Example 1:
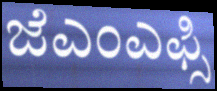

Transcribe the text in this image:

ಜೆಎಂಎಫ್ಸಿ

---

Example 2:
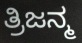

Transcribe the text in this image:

ತ್ರಿಜನ್ಮ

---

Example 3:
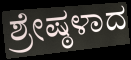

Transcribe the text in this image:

ಶ್ರೇಷ್ಠಳಾದ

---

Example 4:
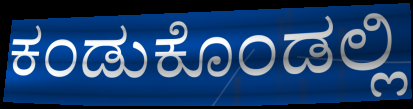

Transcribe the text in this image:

ಕಂಡುಕೊಂಡಲ್ಲಿ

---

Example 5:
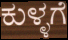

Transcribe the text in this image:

ಕುಳ್ಳಗೆ